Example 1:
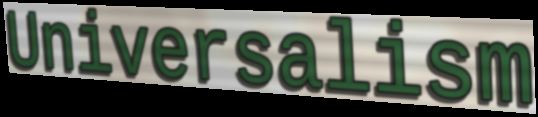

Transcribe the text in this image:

Universalism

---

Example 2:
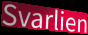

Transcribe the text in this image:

Svarlien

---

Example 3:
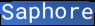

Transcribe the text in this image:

Saphore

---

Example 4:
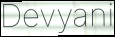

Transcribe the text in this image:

Devyani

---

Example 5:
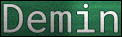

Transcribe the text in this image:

Demin